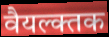
वैयल्क्तक